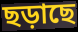
ছড়াছে